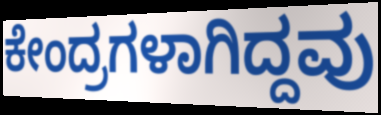
ಕೇಂದ್ರಗಳಾಗಿದ್ದವು